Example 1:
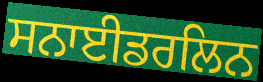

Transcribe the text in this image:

ਸਨਾਈਡਰਲਿਨ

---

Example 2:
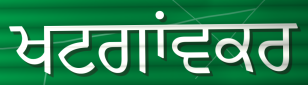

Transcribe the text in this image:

ਖਟਗਾਂਵਕਰ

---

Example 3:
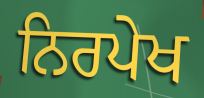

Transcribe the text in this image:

ਨਿਰਪੇਖ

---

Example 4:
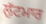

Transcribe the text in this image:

ਲੁੱਟਮਾਰ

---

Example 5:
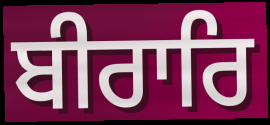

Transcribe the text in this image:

ਬੀਰਾਰਿ